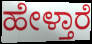
ಹೇಳ್ತಾರೆ